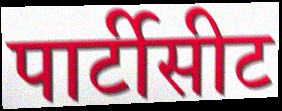
पार्टीसीट